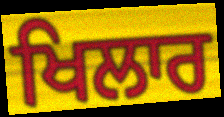
ਖਿਲਾਰ